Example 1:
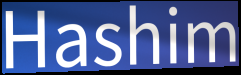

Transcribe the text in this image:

Hashim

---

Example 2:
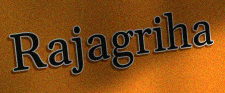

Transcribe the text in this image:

Rajagriha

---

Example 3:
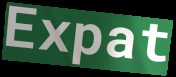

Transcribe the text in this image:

Expat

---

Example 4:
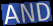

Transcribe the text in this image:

AND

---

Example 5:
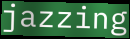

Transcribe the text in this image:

jazzing